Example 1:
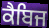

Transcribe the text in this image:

ਕੈਬਿਜ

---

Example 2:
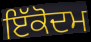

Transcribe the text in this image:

ਇੱਕੋਦਮ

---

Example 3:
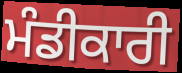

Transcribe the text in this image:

ਮੰਡੀਕਾਰੀ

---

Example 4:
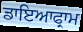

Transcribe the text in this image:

ਡਾਇਆਫ੍ਰਾਮ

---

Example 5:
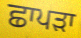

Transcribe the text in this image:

ਛਾਪੜਾ